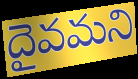
దైవమని